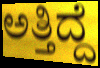
ಅತ್ತಿದ್ದೆ